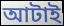
আটাই